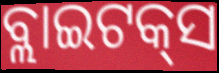
ବ୍ଲାଇଟକ୍‌ସ